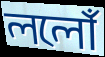
ললোঁ